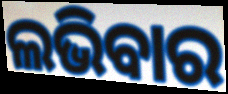
ଲଭିବାର